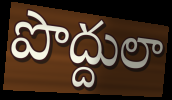
పొద్దులా